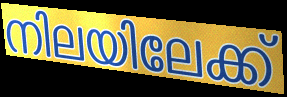
നിലയിലേക്ക്